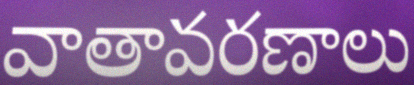
వాతావరణాలు